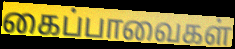
கைப்பாவைகள்